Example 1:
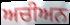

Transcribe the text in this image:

ਅਚੀਅਨ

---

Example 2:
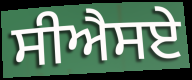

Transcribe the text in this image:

ਸੀਐਸਏ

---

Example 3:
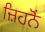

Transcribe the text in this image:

ਜ਼ਿਹਨੋਂ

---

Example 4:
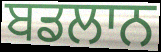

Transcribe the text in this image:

ਬਡਲਾਨ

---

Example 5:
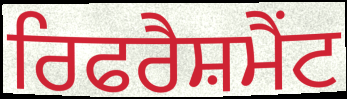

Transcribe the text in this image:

ਰਿਫਰੈਸ਼ਮੈਂਟ